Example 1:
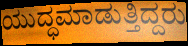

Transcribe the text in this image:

ಯುದ್ಧಮಾಡುತ್ತಿದ್ದರು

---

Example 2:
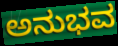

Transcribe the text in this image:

ಅನುಭವ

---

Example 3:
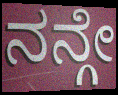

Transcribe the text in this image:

ನನ್ಗೇ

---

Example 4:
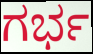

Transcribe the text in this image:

ಗರ್ಭ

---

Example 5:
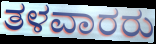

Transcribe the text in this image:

ತಳವಾರರು